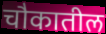
चौकातील